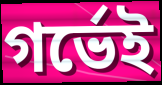
গর্ভেই